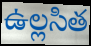
ఉల్లసిత